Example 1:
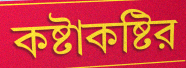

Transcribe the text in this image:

কষ্টাকষ্টির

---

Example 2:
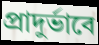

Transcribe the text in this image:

প্রাদুর্ভাবে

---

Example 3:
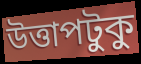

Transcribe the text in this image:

উত্তাপটুকু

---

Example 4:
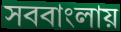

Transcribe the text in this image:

সববাংলায়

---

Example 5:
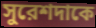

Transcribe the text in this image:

সুরেশদাকে